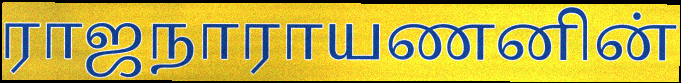
ராஜநாராயணனின்